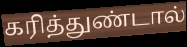
கரித்துண்டால்